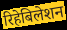
रिहेबिलेशन